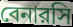
বেনারসি